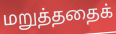
மறுத்ததைக்